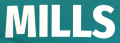
MILLS